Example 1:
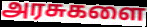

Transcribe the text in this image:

அரசுகளை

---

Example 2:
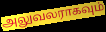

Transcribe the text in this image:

அலுவலராகவும்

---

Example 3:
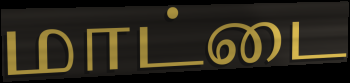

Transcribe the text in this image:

மாட்டை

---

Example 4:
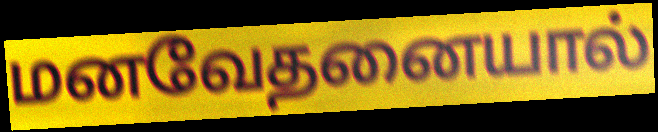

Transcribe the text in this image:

மனவேதனையால்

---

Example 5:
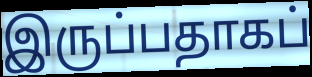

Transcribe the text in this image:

இருப்பதாகப்